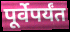
पूर्वेपर्यंत